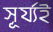
সূৰ্য্যই